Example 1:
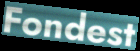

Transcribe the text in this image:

Fondest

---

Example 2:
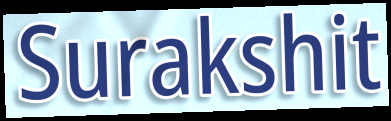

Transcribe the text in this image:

Surakshit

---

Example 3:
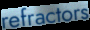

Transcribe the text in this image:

refractors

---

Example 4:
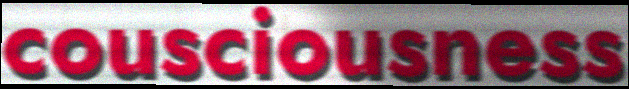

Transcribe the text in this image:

cousciousness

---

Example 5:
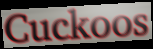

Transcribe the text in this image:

Cuckoos